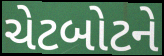
ચેટબોટને